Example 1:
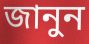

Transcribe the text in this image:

জানুন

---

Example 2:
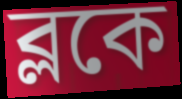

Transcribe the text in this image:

ব্লকে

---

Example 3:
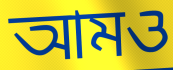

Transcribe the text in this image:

আমও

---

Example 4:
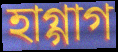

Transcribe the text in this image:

হাগ্গাগ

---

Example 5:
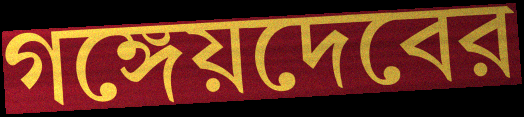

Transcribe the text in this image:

গঙ্গেয়দেবের